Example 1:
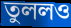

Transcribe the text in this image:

তুললও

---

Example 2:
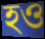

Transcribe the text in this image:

হও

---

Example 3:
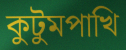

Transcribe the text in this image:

কুটুমপাখি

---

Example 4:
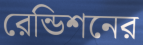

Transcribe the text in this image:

রেন্ডিশনের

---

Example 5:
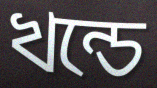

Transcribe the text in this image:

খন্ডে